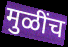
मुळींच